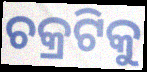
ଚକ୍ରଟିକୁ